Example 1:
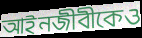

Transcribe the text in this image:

আইনজীবীকেও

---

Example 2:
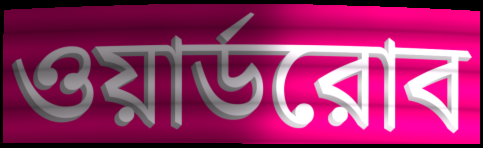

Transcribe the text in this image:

ওয়ার্ডরোব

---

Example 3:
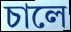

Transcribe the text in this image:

চালে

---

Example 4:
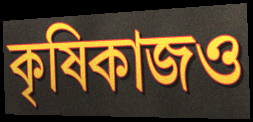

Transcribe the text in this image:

কৃষিকাজও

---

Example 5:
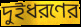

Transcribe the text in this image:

দুইধরণের